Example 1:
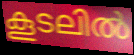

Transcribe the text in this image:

കൂടലിൽ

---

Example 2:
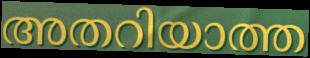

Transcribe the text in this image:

അതറിയാത്ത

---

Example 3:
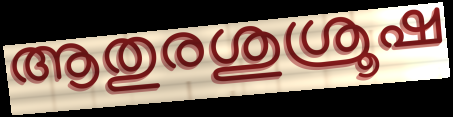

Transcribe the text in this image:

ആതുരശുശ്രൂഷ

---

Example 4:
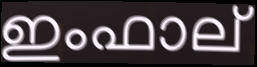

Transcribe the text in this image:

ഇംഫാല്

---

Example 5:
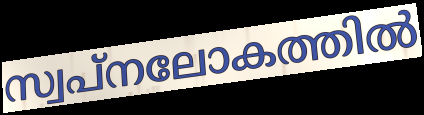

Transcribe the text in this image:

സ്വപ്നലോകത്തിൽ